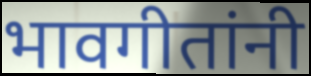
भावगीतांनी